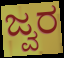
ಜ್ವರ